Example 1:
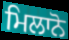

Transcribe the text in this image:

ਮਿਲਾਨੋ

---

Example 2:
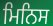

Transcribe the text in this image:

ਮਿਨਿਸ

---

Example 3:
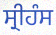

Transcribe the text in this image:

ਸ੍ਰੀਹੰਸ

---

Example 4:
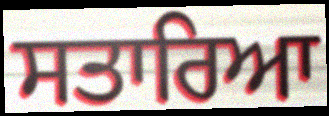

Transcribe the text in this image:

ਸਤਾਰਿਆ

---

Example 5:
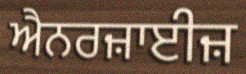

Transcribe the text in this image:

ਐਨਰਜ਼ਾਈਜ਼